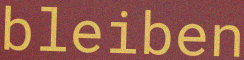
bleiben